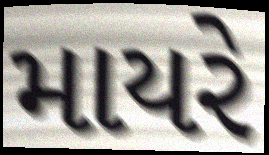
માયરે